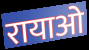
रायाओ